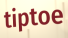
tiptoe